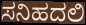
ಸನಿಹದಲಿ